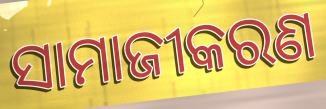
ସାମାଜୀକରଣ